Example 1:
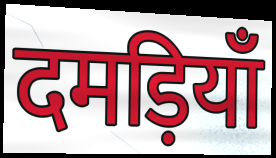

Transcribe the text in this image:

दमड़ियाँ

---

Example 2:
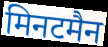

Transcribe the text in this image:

मिनटमैन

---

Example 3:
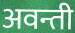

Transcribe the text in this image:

अवन्ती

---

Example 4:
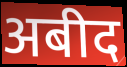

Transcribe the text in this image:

अबीद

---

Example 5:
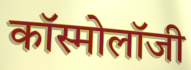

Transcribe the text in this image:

कॉस्मोलॉजी